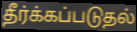
தீர்க்கப்படுதல்